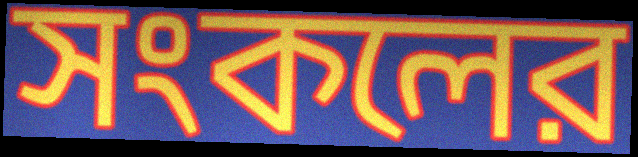
সংকলের